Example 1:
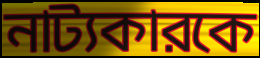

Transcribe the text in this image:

নাট্যকারকে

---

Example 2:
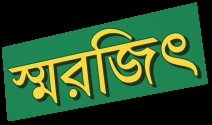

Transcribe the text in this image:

স্মরজিৎ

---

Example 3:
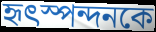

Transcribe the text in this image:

হৃৎস্পন্দনকে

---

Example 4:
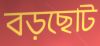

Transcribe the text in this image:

বড়ছোট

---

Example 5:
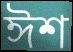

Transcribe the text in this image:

ঈশ